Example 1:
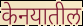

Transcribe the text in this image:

केनयातील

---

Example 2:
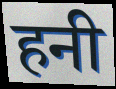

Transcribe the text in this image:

हनी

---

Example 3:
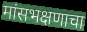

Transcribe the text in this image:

मांसभक्षणाचा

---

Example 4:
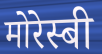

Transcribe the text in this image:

मोरेस्बी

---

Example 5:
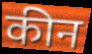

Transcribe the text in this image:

कीन